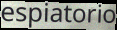
espiatorio